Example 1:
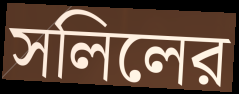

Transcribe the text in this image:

সলিলের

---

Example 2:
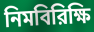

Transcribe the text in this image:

নিমবিরিক্ষি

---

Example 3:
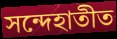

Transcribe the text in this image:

সন্দেহাতীত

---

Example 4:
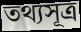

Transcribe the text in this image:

তথ্যসূত্র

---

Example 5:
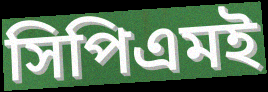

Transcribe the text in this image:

সিপিএমই